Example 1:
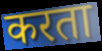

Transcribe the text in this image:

करता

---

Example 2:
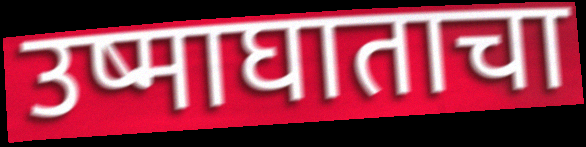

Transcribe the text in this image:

उष्माघाताचा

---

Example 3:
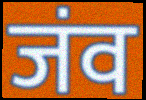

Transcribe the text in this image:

जंव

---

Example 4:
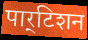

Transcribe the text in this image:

पार्टिशन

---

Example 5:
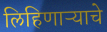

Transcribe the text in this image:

लिहिणाऱ्याचे